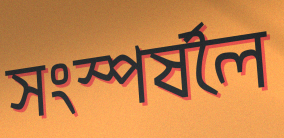
সংস্পৰ্ষলৈ